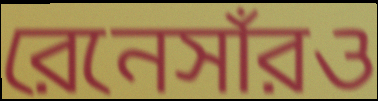
রেনেসাঁরও